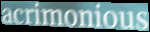
acrimonious